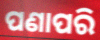
ପଣାପରି